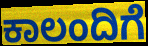
ಕಾಲಂದಿಗೆ